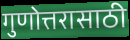
गुणोत्तरासाठी